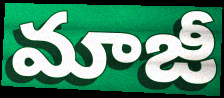
మాజీ